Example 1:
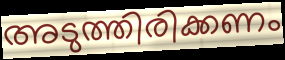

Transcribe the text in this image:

അടുത്തിരിക്കണം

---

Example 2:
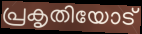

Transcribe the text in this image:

പ്രകൃതിയോട്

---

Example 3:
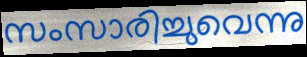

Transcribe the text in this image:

സംസാരിച്ചുവെന്നു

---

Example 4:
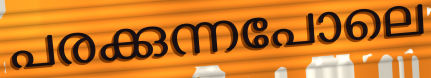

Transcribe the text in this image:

പരക്കുന്നപോലെ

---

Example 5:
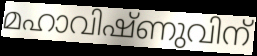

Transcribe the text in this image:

മഹാവിഷ്ണുവിന്